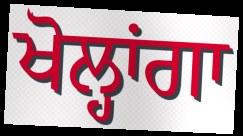
ਖੋਲ੍ਹਾਂਗਾ